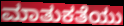
ಮಾತುಕತೆಯು